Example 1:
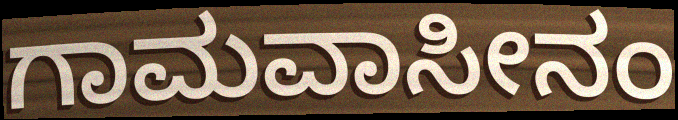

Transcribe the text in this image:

ಗಾಮವಾಸೀನಂ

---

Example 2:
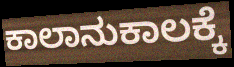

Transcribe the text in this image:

ಕಾಲಾನುಕಾಲಕ್ಕೆ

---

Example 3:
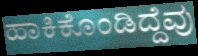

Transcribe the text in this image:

ಹಾಕಿಕೊಂಡಿದ್ದೆವು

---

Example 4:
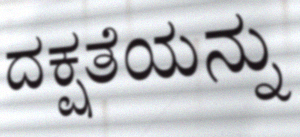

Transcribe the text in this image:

ದಕ್ಷತೆಯನ್ನು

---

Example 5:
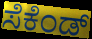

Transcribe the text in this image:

ಸೆಕೆಂಡ್